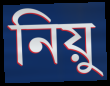
নিয়ু